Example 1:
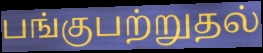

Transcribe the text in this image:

பங்குபற்றுதல்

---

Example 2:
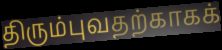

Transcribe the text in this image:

திரும்புவதற்காகக்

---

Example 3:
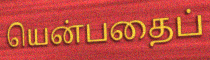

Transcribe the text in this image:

யென்பதைப்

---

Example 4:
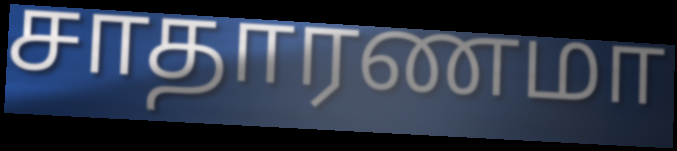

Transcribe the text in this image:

சாதாரணமா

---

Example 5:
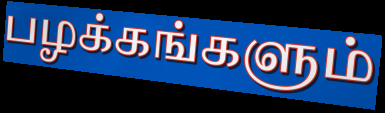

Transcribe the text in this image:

பழக்கங்களும்